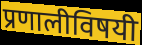
प्रणालीविषयी